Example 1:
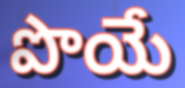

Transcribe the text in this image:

పొయే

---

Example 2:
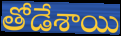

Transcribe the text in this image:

తోడేశాయి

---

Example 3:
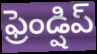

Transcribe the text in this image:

ఫ్రెండ్షిప్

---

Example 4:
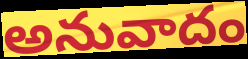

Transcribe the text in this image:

అనువాదం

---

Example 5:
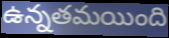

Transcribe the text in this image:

ఉన్నతమయింది